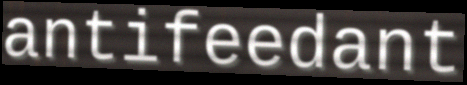
antifeedant